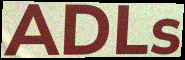
ADLs